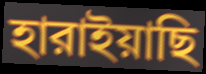
হারাইয়াছি